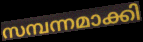
സമ്പന്നമാക്കി